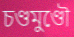
চণ্ডমুণ্ডৌ